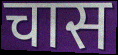
चास